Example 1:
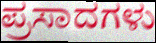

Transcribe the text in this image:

ಪ್ರಸಾದಗಳು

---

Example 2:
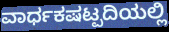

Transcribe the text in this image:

ವಾರ್ಧಕಷಟ್ಪದಿಯಲ್ಲಿ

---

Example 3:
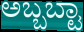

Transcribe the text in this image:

ಅಬ್ಬಬ್ಟಾ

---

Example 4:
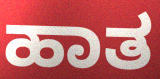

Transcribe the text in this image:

ಹಾತ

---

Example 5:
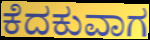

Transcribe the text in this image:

ಕೆದಕುವಾಗ